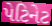
પેટિનેટ